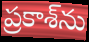
ప్రకాశ్‌ను